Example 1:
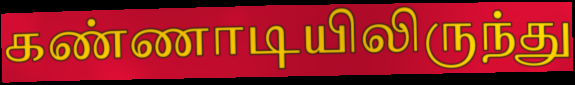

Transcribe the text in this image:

கண்ணாடியிலிருந்து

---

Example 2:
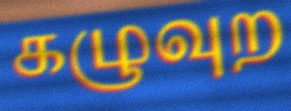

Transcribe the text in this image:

கழுவுற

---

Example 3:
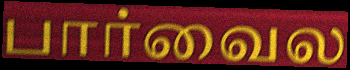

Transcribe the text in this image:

பார்வைல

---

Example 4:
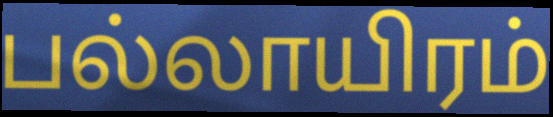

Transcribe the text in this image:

பல்லாயிரம்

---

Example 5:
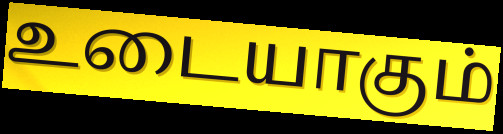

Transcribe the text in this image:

உடையாகும்